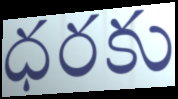
ధరకు